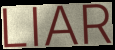
LIAR